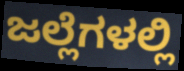
ಜಲ್ಲೆಗಳಲ್ಲಿ